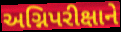
અગ્નિપરીક્ષાને